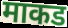
माकड